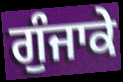
ਗੁੰਜਾਕੇ